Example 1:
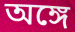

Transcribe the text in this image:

অঙ্গে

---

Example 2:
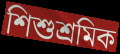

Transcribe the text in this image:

শিশুশ্রমিক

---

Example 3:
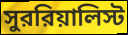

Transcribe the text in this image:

সুররিয়ালিস্ট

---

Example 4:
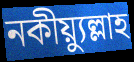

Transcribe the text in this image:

নকীয়্যুল্লাহ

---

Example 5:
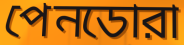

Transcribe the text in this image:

পেনডোরা